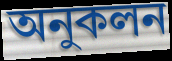
অনুকলন